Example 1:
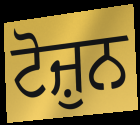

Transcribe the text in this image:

ਟੋਜ਼ੁਨ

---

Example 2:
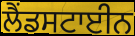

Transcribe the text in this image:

ਲੈਂਡਸਟਾਈਨ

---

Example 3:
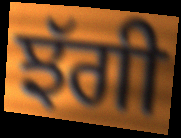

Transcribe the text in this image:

ਝੱਗੀ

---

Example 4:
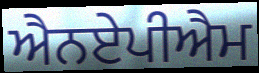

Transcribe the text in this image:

ਐਨਏਪੀਐਮ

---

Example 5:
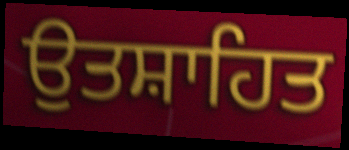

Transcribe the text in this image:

ਉੁਤਸ਼ਾਹਿਤ